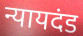
न्यायदंड